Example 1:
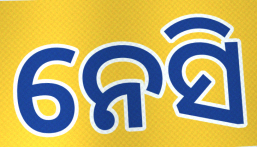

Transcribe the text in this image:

ନେସି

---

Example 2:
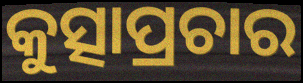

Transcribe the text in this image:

କୁତ୍ସାପ୍ରଚାର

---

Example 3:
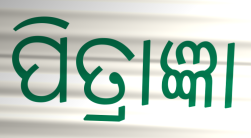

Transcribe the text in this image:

ପିତ୍ରାଜ୍ଞା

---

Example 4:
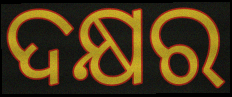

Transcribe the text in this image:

ଦକ୍ଷର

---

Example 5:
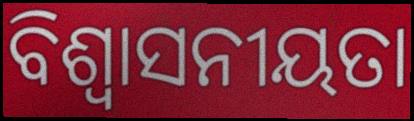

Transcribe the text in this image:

ବିଶ୍ୱାସନୀୟତା